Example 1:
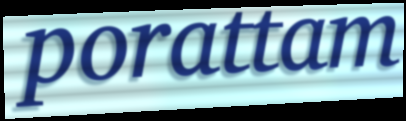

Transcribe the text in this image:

porattam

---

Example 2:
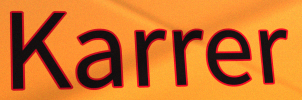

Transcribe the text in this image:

Karrer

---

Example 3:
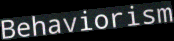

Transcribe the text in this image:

Behaviorism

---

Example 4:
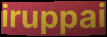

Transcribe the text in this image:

iruppai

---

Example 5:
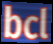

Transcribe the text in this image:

bcl